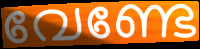
വേണ്ടേ